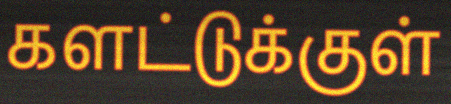
களட்டுக்குள்